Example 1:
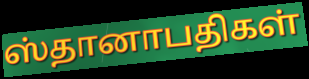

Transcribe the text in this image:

ஸ்தானாபதிகள்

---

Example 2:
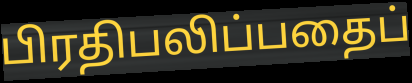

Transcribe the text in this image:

பிரதிபலிப்பதைப்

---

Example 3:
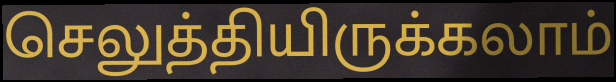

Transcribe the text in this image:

செலுத்தியிருக்கலாம்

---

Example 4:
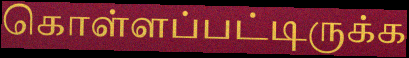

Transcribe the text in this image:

கொள்ளப்பட்டிருக்க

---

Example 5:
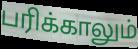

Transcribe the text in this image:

பரிக்காலும்